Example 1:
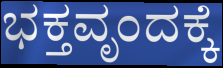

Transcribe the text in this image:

ಭಕ್ತವೃಂದಕ್ಕೆ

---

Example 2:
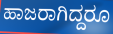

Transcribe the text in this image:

ಹಾಜರಾಗಿದ್ದರೂ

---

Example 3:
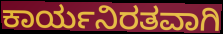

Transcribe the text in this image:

ಕಾರ್ಯನಿರತವಾಗಿ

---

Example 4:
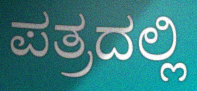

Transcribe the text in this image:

ಪತ್ರದಲ್ಲಿ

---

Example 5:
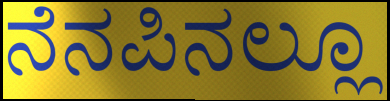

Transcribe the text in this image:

ನೆನಪಿನಲ್ಲೂ